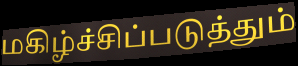
மகிழ்ச்சிப்படுத்தும்